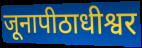
जूनापीठाधीश्वर